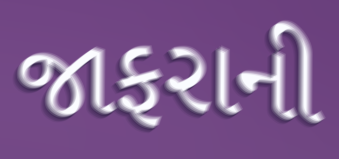
જાફરાની